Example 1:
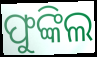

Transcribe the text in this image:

ଫୁଙ୍କିଲ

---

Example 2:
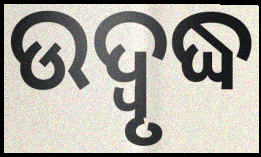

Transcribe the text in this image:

ଉଦ୍ବୃଦ୍ଧ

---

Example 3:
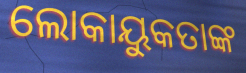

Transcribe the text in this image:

ଲୋକାୟୁକତାଙ୍କ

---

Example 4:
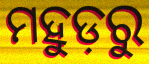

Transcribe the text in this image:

ମହୁଡ଼ରୁ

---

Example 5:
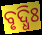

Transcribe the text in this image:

ବୃଦ୍ଧିଃ